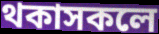
থকাসকলে